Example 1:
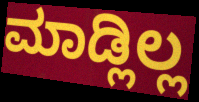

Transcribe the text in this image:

ಮಾಡ್ಲಿಲ್ಲ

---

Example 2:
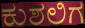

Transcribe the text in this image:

ಕುಶಲಿಗ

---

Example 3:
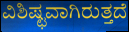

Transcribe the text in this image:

ವಿಶಿಷ್ಟವಾಗಿರುತ್ತದೆ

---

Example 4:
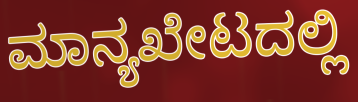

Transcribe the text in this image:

ಮಾನ್ಯಖೇಟದಲ್ಲಿ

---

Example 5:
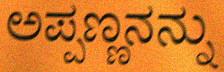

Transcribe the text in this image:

ಅಪ್ಪಣ್ಣನನ್ನು